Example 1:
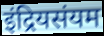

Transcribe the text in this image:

इंद्रियसंयम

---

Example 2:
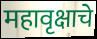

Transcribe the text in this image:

महावृक्षाचे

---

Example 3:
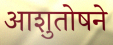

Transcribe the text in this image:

आशुतोषने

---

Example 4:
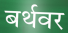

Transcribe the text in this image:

बर्थवर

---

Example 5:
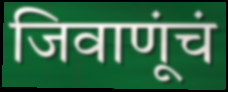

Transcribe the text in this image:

जिवाणूंचं